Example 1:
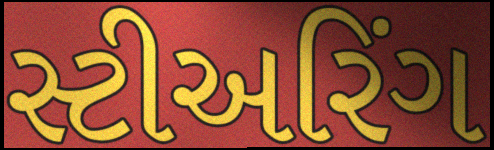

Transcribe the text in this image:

સ્ટીઅરિંગ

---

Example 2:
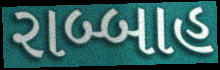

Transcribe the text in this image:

રાબ્બાહ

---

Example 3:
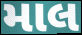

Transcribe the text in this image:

માલ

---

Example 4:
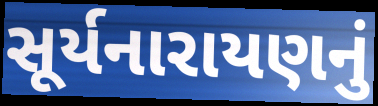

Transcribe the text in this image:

સૂર્યનારાયણનું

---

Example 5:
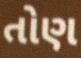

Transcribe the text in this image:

તોણ